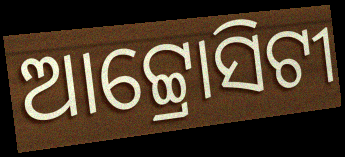
ଆଟ୍ଟ୍ରୋସିଟୀ